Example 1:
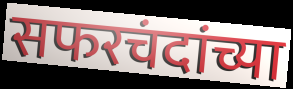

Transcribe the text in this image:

सफरचंदांच्या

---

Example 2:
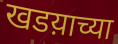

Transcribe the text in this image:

खडय़ाच्या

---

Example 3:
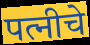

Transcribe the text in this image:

पत्‍नीचे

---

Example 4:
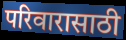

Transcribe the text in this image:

परिवारासाठी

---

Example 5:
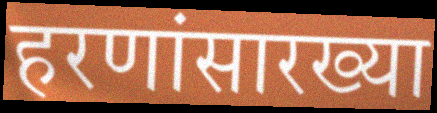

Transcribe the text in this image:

हरणांसारख्या